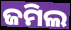
ଜମିଲ